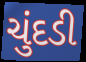
ચુંદડી